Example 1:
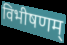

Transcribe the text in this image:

विभीषणम्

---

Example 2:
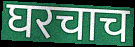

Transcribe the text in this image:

घरचाच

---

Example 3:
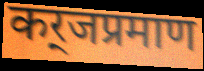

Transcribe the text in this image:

कर्जप्रमाण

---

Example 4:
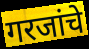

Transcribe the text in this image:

गरजांचे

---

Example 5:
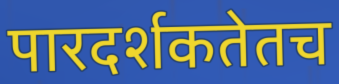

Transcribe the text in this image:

पारदर्शकतेतच